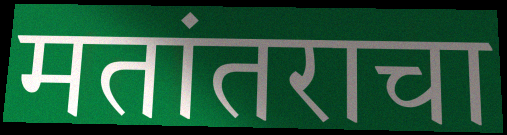
मतांतराचा